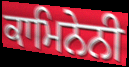
ਕਾਮਿਨੇਨੀ